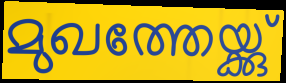
മുഖത്തേയ്ക്കു്